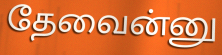
தேவைன்னு